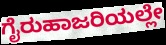
ಗೈರುಹಾಜರಿಯಲ್ಲೇ